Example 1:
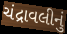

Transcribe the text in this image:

ચંદ્રાવલીનું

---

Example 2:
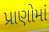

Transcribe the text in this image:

પ્રાણોમાં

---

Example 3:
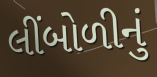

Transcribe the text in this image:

લીંબોળીનું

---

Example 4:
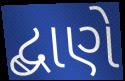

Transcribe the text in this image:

દ્બાણે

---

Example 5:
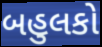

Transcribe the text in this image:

બહુલકો